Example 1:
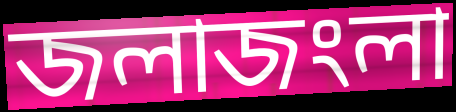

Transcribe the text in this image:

জলাজংলা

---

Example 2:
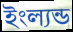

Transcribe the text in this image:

ইংল্যন্ড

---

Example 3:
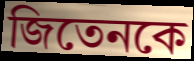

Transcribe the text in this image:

জিতেনকে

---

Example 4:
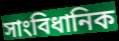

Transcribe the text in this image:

সাংবিধানিক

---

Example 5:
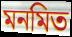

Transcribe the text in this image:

মনমিত